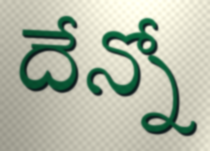
దేన్నో